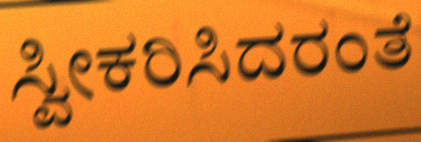
ಸ್ವೀಕರಿಸಿದರಂತೆ